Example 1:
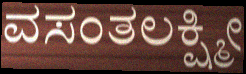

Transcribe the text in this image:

ವಸಂತಲಕ್ಷ್ಮೀ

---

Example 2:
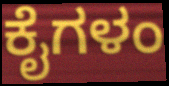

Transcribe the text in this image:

ಕೈಗಳಂ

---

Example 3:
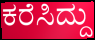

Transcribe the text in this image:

ಕರೆಸಿದ್ದು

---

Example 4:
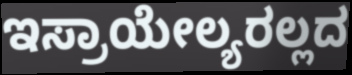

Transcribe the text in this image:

ಇಸ್ರಾಯೇಲ್ಯರಲ್ಲದ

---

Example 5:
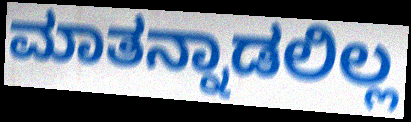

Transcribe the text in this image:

ಮಾತನ್ನಾಡಲಿಲ್ಲ